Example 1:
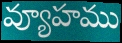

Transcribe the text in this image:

వ్యూహము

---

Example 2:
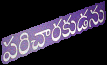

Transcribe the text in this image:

పరిచారకుడను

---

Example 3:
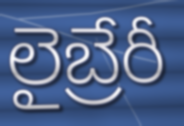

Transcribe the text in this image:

లైబ్రేరీ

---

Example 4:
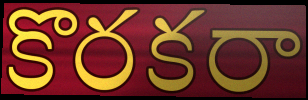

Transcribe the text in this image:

కొరకరా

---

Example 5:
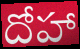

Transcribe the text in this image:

దోహా